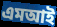
এমআই